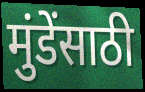
मुंडेंसाठी